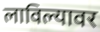
लाविल्यावर